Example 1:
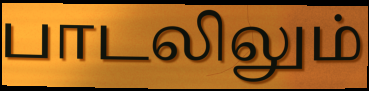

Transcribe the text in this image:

பாடலிலும்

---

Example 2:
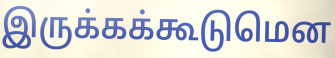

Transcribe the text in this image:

இருக்கக்கூடுமென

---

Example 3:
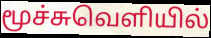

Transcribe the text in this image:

மூச்சுவெளியில்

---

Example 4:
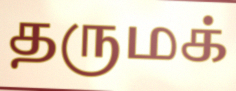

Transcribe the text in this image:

தருமக்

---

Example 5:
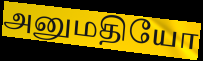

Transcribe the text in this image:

அனுமதியோ